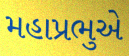
મહાપ્રભુએ